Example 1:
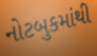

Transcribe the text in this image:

નોટબુકમાંથી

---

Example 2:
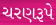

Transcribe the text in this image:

ચરણરૂપે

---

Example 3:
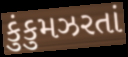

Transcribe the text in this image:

કુંકુમઝરતાં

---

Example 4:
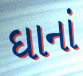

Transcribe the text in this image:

ઘાનાં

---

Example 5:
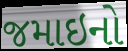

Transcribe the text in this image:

જમાઇનો